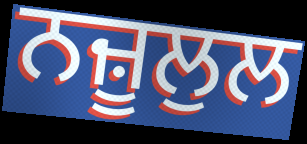
ਨਜ਼ੂਲੁਲ